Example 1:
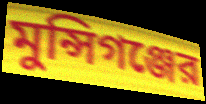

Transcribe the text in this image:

মুন্সিগঞ্জের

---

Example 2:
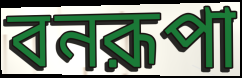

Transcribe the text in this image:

বনরূপা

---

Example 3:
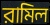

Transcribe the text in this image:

রামিল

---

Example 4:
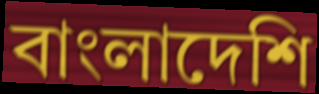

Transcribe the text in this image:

বাংলাদেশি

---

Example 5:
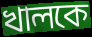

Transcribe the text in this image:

খালকে